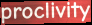
proclivity